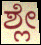
ಶ್ಲೇ